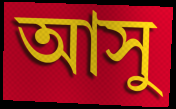
আসু